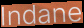
Indane